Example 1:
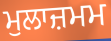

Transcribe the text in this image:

ਮੁਲਾਜ਼ਮਮ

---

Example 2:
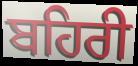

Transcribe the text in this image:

ਬਹਿਰੀ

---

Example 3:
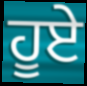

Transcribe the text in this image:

ਹੂਏ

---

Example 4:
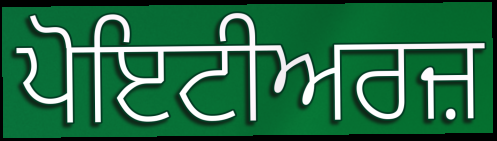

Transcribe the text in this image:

ਪੋਇਟੀਅਰਜ਼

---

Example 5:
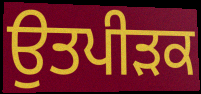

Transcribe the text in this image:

ਉਤਪੀੜਕ